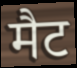
मैट